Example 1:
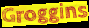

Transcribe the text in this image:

Groggins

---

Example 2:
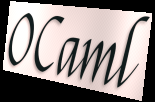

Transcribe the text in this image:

OCaml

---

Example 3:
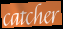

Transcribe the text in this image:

catcher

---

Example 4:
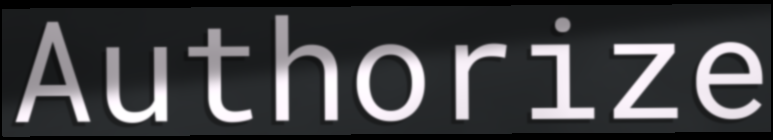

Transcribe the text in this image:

Authorize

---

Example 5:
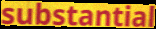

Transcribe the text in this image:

substantial